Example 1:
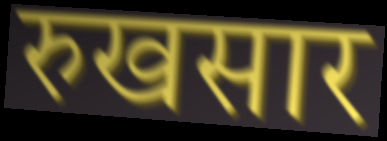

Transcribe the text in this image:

रुखसार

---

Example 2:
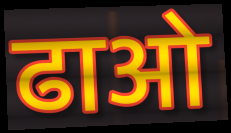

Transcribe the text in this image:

ढाओ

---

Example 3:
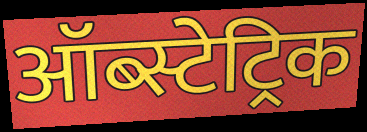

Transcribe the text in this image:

ऑब्स्टेट्रिक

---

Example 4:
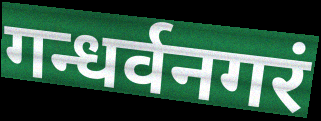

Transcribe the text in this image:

गन्धर्वनगरं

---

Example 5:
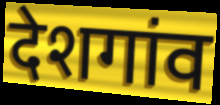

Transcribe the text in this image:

देशगांव